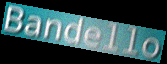
Bandello